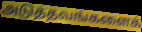
அடுத்தவங்களைக்